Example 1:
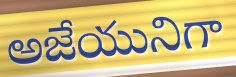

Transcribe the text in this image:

అజేయునిగా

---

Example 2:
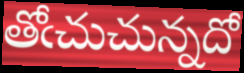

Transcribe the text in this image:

తోఁచుచున్నదో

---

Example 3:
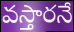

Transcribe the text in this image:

వస్తారనే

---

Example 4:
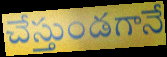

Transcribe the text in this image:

చేస్తుండగానే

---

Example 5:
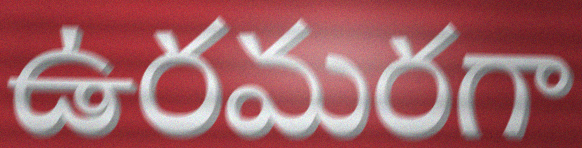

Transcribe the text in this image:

ఉరమరగా